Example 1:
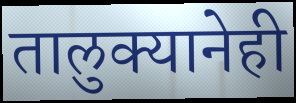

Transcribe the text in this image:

तालुक्यानेही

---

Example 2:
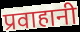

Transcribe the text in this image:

प्रवाहानी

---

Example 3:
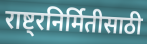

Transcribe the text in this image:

राष्ट्रनिर्मितीसाठी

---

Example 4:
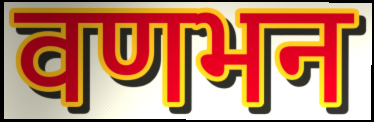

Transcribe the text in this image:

वणभन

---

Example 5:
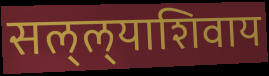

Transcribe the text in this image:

सल्ल्याशिवाय